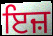
ਇਜ਼